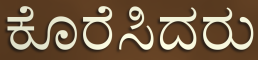
ಕೊರೆಸಿದರು